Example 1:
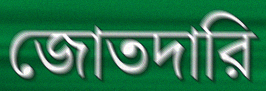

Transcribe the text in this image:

জোতদারি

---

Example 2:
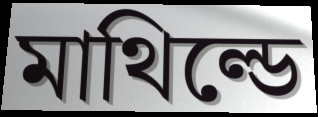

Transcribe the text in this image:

মাথিল্ডে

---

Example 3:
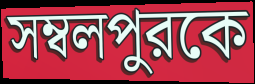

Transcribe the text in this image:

সম্বলপুরকে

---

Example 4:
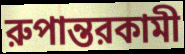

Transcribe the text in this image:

রুপান্তরকামী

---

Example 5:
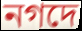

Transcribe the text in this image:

নগদে